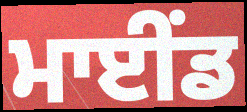
ਮਾਈਂਡ